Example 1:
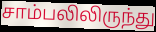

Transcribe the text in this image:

சாம்பலிலிருந்து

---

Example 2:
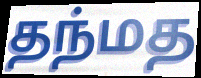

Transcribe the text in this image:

தந்மத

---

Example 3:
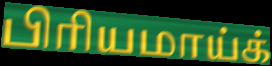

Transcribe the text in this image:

பிரியமாய்க்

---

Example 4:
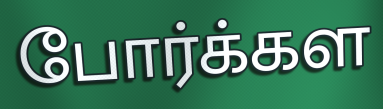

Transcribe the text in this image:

போர்க்கள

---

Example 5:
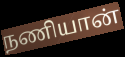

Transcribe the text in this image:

நணியான்